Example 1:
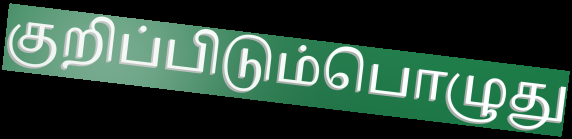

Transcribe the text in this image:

குறிப்பிடும்பொழுது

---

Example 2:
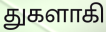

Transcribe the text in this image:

துகளாகி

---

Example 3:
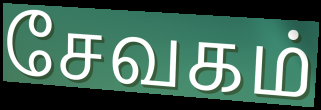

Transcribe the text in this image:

சேவகம்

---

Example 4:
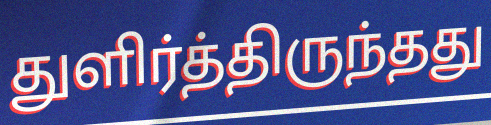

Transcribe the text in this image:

துளிர்த்திருந்தது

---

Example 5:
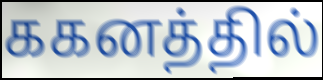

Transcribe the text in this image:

ககனத்தில்